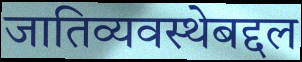
जातिव्यवस्थेबद्दल